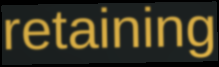
retaining